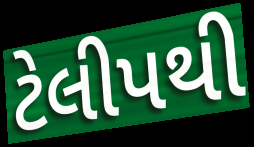
ટેલીપથી